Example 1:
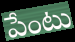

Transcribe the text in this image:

పేంటు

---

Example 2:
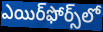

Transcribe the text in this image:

ఎయిర్‌ఫోర్స్‌లో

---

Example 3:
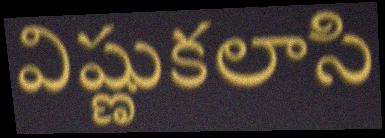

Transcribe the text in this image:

విష్ణుకలాసి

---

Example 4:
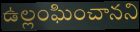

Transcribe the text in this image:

ఉల్లంఘించానని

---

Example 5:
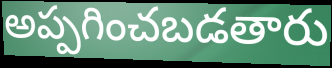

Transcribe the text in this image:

అప్పగించబడతారు